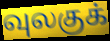
வுலகுக்